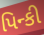
પિન્કી